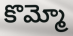
కొమ్మో